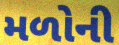
મળોની